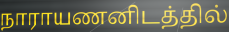
நாராயணனிடத்தில்